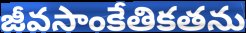
జీవసాంకేతికతను